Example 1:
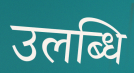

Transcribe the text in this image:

उलब्धि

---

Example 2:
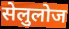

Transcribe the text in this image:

सेलुलोज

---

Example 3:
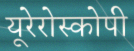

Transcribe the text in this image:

यूरेरोस्कोपी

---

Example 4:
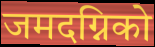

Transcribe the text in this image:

जमदग्निको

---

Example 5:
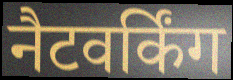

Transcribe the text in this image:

नैटवर्किंग